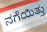
ನಗೆಯಿತ್ತು